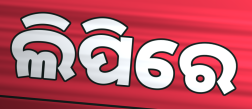
ଲିପିରେ